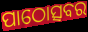
ପାଠୋତ୍ସବର